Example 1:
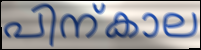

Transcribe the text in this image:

പിന്കാല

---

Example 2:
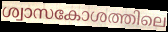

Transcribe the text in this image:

ശ്വാസകോശത്തിലെ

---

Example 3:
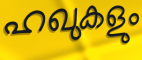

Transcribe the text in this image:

ഹഖുകളും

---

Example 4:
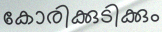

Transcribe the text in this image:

കോരിക്കുടിക്കും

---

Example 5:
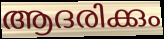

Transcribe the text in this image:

ആദരിക്കും